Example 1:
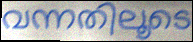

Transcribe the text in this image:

വന്നതിലൂടെ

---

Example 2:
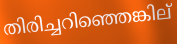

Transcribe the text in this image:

തിരിച്ചറിഞ്ഞെങ്കില്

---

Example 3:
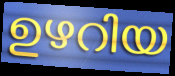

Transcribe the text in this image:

ഉഴറിയ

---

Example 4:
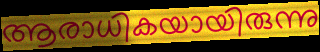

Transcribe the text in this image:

ആരാധികയായിരുന്നു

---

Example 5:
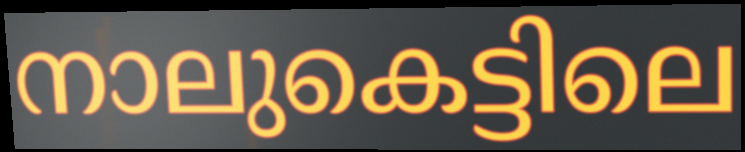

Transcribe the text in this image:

നാലുകെട്ടിലെ